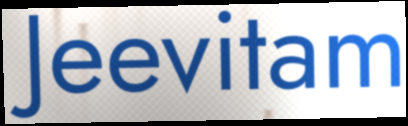
Jeevitam